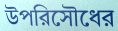
উপরিসৌধের